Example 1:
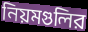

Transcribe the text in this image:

নিয়মগুলির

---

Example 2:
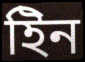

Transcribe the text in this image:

ইিন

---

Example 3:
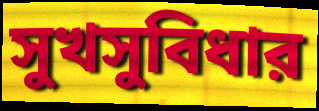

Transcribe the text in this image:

সুখসুবিধার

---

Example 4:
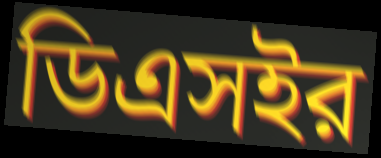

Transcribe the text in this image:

ডিএসইর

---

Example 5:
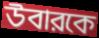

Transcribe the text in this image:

উবারকে